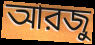
আরজু